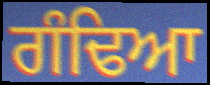
ਗੰਢਿਆ